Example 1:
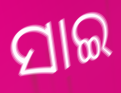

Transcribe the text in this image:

ସାଇ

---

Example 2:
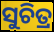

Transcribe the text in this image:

ସୁଚିତ୍ର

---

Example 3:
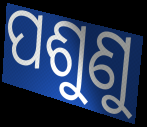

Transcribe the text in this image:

ପଶୁଣୁ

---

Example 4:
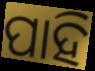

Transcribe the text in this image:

ପାହି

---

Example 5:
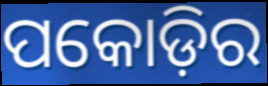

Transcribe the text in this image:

ପକୋଡ଼ିର